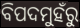
ବିପଦମୁହଁରୁ